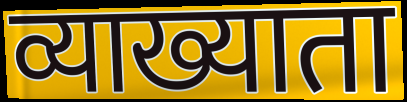
व्‍याख्‍याता